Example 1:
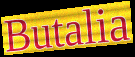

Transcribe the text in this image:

Butalia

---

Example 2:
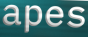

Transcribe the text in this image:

apes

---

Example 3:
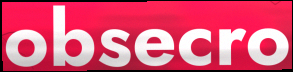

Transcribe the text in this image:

obsecro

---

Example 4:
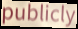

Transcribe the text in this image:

publicly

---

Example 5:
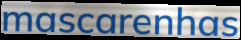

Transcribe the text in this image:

mascarenhas